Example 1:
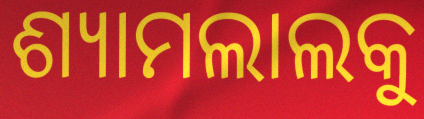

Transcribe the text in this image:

ଶ୍ୟାମଲାଲକୁ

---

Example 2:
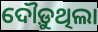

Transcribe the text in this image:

ଦୌଡ଼ୁଥିଲା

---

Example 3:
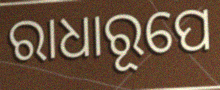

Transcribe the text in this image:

ରାଧାରୂପେ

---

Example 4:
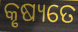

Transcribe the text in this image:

କୃଷ୍ୟତେ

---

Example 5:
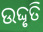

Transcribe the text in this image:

ଉଦ୍ଦୃତି